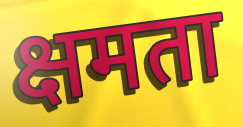
क्षमता